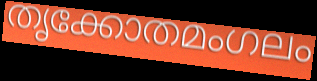
തൃക്കോതമംഗലം